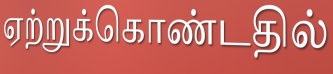
ஏற்றுக்கொண்டதில்